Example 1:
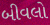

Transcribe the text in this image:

બીવલો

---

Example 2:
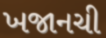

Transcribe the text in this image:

ખજાનચી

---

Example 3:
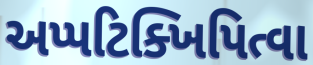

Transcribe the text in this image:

અપ્પટિક્ખિપિત્વા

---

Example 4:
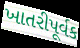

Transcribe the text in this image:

ખાતરીપૂર્વક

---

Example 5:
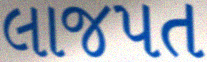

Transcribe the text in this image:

લાજપત